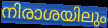
നിരാശയിലും